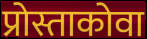
प्रोस्ताकोवा